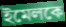
ইমেলকে